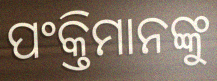
ପଂକ୍ତିମାନଙ୍କୁ